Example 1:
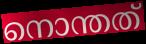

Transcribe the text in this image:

നൊന്തത്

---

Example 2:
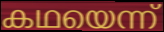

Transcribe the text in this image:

കഥയെന്ന്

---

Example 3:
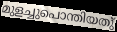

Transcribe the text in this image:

മുളച്ചുപൊന്തിയതു്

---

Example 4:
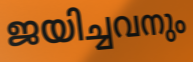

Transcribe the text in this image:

ജയിച്ചവനും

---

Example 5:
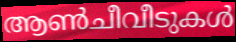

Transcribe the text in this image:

ആൺചീവീടുകൾ